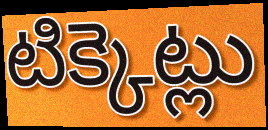
టిక్కెట్లు